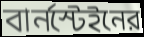
বার্নস্টেইনের